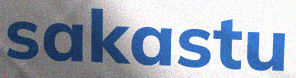
sakastu